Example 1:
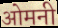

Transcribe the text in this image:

ओमनी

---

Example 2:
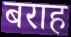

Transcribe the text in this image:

बराह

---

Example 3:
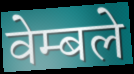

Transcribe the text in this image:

वेम्बले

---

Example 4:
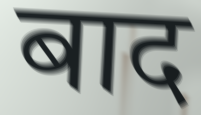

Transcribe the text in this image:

बाद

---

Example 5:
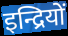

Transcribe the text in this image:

इन्द्रियों